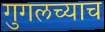
गुगलच्याच